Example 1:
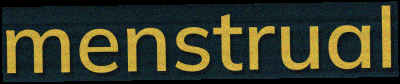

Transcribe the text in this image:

menstrual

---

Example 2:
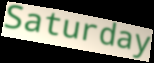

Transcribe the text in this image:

Saturday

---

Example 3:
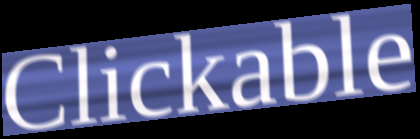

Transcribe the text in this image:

Clickable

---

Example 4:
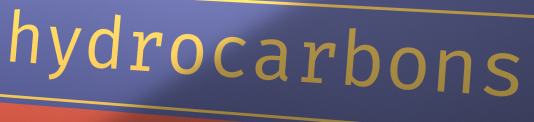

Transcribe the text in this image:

hydrocarbons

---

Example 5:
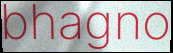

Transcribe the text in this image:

bhagno